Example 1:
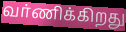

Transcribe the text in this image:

வர்ணிக்கிறது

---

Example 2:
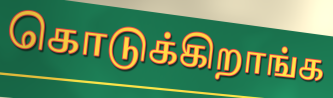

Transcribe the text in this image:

கொடுக்கிறாங்க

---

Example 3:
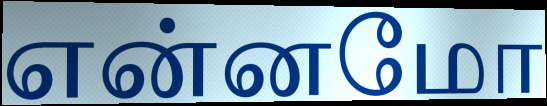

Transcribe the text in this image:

என்னமோ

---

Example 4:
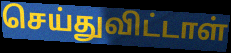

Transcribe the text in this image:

செய்துவிட்டாள்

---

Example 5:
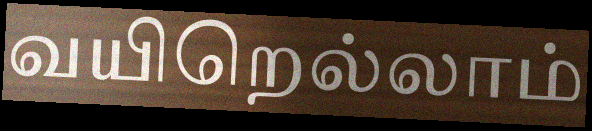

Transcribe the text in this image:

வயிறெல்லாம்